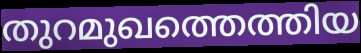
തുറമുഖത്തെത്തിയ